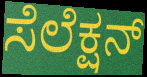
ಸೆಲೆಕ್ಷನ್